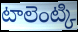
టాలెంట్కి